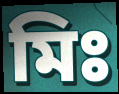
মিঃ